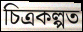
চিত্ৰকল্পত